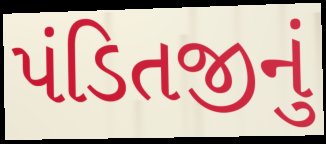
પંડિતજીનું